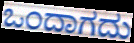
ಒಂದಾಗದು